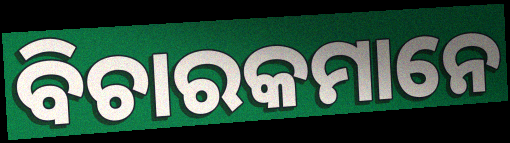
ବିଚାରକମାନେ